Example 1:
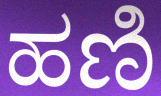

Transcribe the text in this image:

ಹಣಿ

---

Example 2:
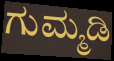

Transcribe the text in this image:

ಗುಮ್ಮಡಿ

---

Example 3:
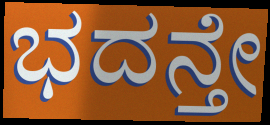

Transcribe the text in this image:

ಭದನ್ತೇ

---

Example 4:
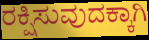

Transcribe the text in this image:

ರಕ್ಷಿಸುವುದಕ್ಕಾಗಿ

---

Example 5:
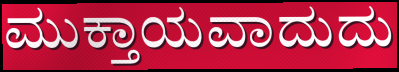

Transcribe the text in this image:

ಮುಕ್ತಾಯವಾದುದು